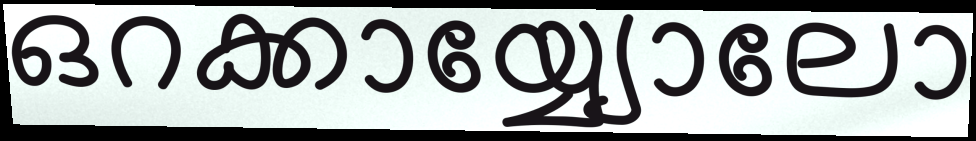
ഒറക്കായ്യ്യോലോ